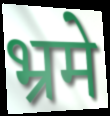
भ्रमे